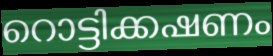
റൊട്ടിക്കഷണം